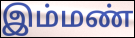
இம்மண்